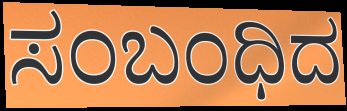
ಸಂಬಂಧಿದ